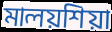
মালয়শিয়া